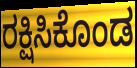
ರಕ್ಷಿಸಿಕೊಂಡ